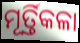
ମୂର୍ତ୍ତିକଳା